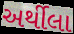
અર્થીલા